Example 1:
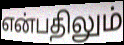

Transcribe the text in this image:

என்பதிலும்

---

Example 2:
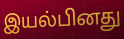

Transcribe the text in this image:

இயல்பினது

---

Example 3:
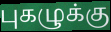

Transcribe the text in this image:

புகழுக்கு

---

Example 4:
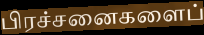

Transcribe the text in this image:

பிரச்சனைகளைப்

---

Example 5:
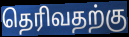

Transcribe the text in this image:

தெரிவதற்கு